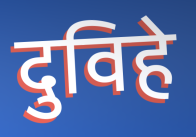
दुविहे